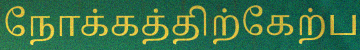
நோக்கத்திற்கேற்ப